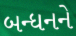
બન્ધનને